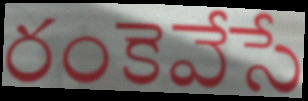
రంకెవేసే